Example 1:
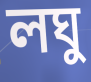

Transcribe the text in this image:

লঘু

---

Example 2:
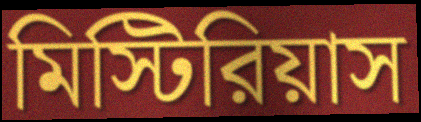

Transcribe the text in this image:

মিস্টিরিয়াস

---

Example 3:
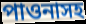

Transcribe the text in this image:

পাওনাসহ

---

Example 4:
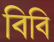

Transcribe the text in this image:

বিবি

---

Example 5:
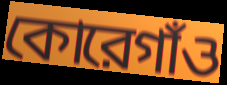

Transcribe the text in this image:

কোরেগাঁও